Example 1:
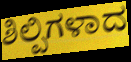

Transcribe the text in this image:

ಶಿಲ್ಪಿಗಳಾದ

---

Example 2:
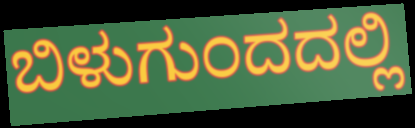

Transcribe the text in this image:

ಬಿಳುಗುಂದದಲ್ಲಿ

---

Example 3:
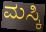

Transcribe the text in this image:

ಮಸ್ಕಿ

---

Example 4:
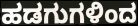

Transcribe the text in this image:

ಹಡಗುಗಳಿಂದ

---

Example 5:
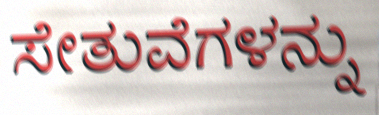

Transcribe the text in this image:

ಸೇತುವೆಗಳನ್ನು